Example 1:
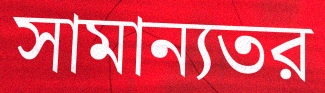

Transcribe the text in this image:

সামান্যতর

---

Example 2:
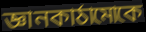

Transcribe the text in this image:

জ্ঞানকাঠামোকে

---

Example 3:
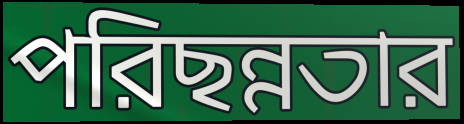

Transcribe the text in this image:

পরিছন্নতার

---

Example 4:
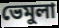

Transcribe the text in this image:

ভেমুলা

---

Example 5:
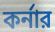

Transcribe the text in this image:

কর্নার